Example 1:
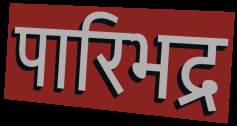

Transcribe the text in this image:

पारिभद्र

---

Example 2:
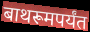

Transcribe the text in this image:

बाथरूमपर्यंत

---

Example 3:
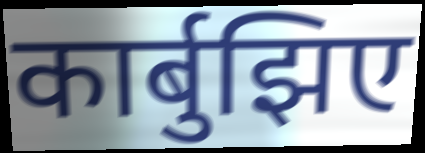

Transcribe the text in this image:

कार्बुझिए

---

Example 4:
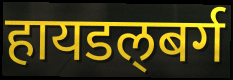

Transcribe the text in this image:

हायडल्‌बर्ग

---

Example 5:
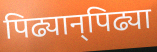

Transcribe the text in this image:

पिढ्यान्‌पिढ्या